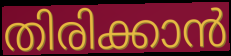
തിരിക്കാൻ